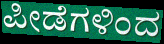
ಪೀಡೆಗಳಿಂದ